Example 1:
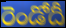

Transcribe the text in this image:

రెండోదీ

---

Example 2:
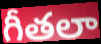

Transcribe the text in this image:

గీతలా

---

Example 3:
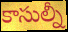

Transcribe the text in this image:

కాసుల్నీ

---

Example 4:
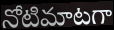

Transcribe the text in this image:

నోటిమాటగా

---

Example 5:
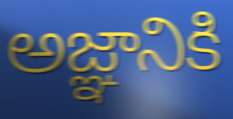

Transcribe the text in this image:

అజ్ఞానికి